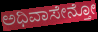
ಅಧಿವಾಸೇನ್ತೋ